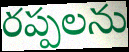
రప్పలను